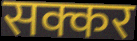
सक्कर